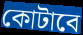
কোটাবে